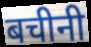
बचीनी